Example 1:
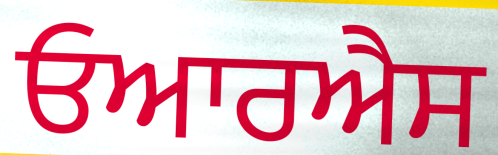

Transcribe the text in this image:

ਓਆਰਐਸ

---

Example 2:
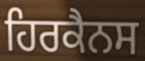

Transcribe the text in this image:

ਹਿਰਕੈਨਸ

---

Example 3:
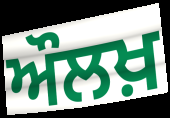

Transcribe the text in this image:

ਔਲਖ਼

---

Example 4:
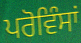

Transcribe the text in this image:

ਪਰੋਵਿੰਸਾਂ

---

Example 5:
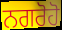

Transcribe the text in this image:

ਨਗਰੋਹੋ